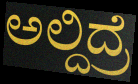
ಅಲ್ದಿದ್ರೆ